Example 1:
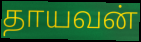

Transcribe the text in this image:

தாயவன்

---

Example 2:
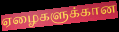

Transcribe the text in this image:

ஏழைகளுக்கான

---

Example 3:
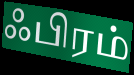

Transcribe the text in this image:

ஃபிரம்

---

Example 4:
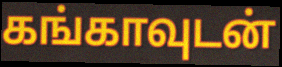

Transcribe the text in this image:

கங்காவுடன்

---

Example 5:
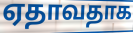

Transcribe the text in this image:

ஏதாவதாக